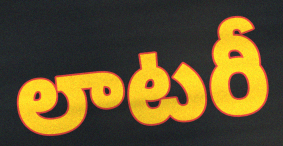
లాటరీ